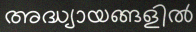
അദ്ധ്യായങ്ങളിൽ